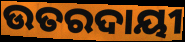
ଉତରଦାୟୀ